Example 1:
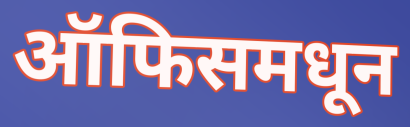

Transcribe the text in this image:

ऑफिसमधून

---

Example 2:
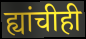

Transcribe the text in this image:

ह्यांचीही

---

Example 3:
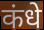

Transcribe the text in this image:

कंधे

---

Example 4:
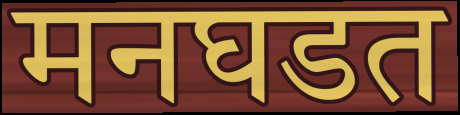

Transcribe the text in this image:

मनघडत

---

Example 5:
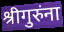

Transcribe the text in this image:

श्रीगुरुंना